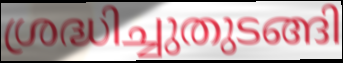
ശ്രദ്ധിച്ചുതുടങ്ങി